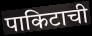
पाकिटाची